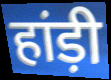
हांड़ी